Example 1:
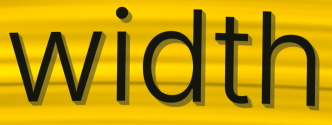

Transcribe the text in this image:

width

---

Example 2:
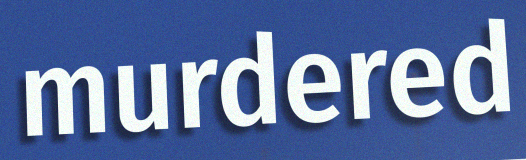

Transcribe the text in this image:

murdered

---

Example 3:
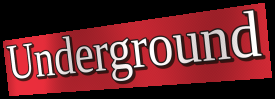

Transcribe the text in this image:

Underground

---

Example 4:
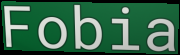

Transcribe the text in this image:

Fobia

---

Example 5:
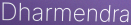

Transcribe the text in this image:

Dharmendra